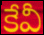
కేవీ